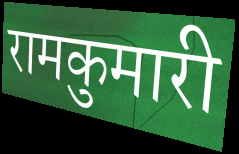
रामकुमारी